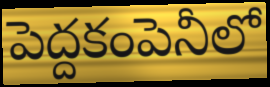
పెద్దకంపెనీలో